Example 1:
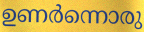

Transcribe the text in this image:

ഉണർന്നൊരു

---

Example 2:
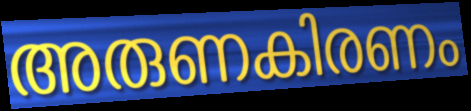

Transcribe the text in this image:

അരുണകിരണം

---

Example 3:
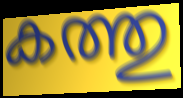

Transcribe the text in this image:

കത്തു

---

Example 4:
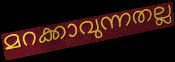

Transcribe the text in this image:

മറക്കാവുന്നതല്ല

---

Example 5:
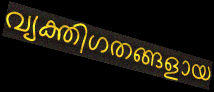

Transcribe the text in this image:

വ്യക്തിഗതങ്ങളായ